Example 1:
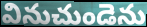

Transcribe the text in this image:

వినుచుండెను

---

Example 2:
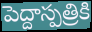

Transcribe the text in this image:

పెద్దాస్పత్రికి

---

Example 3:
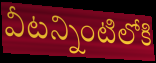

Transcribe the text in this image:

వీటన్నింటిలోకి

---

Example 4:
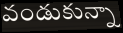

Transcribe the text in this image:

వండుకున్నా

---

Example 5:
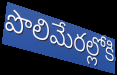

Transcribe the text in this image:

పొలిమేరల్లోకి